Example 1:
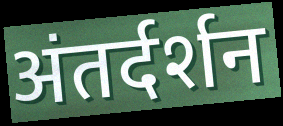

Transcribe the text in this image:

अंतर्दर्शन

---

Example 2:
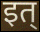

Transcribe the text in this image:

इत्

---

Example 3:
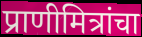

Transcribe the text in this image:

प्राणीमित्रांचा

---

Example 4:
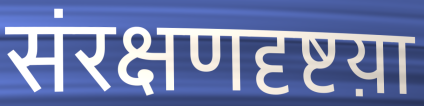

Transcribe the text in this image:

संरक्षणदृष्टय़ा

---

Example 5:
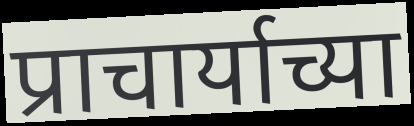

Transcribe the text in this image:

प्राचार्याच्या